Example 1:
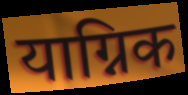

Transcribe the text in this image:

याग्निक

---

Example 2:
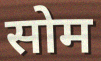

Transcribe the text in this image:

सोम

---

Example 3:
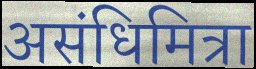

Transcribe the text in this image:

असंधिमित्रा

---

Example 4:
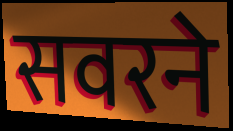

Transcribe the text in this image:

सवरने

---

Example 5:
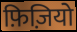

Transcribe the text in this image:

फ़िज़ियो